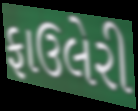
ફાઉલેરી